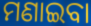
ମଣାଇବା